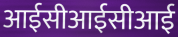
आईसीआईसीआई